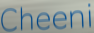
Cheeni